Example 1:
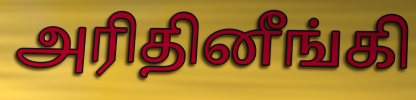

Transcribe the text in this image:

அரிதினீங்கி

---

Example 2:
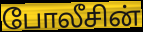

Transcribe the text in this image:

போலீசின்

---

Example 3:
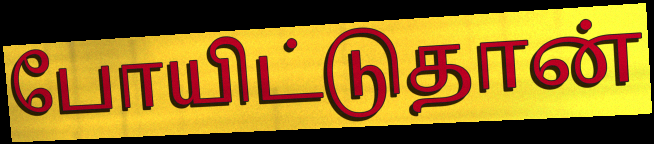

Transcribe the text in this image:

போயிட்டுதான்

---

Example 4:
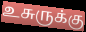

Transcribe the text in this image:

உசுருக்கு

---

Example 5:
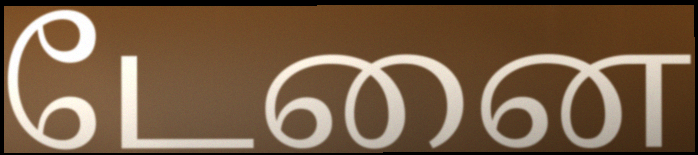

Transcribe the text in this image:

டேனை